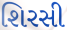
શિરસી